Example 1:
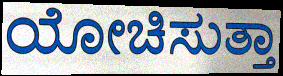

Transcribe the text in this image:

ಯೋಚಿಸುತ್ತಾ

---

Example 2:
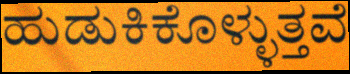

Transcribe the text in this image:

ಹುಡುಕಿಕೊಳ್ಳುತ್ತವೆ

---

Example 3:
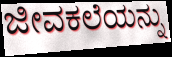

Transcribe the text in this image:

ಜೀವಕಲೆಯನ್ನು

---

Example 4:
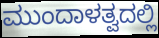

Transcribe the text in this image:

ಮುಂದಾಳತ್ವದಲ್ಲಿ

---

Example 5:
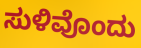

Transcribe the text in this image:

ಸುಳಿವೊಂದು